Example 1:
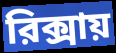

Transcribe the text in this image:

রিক্সায়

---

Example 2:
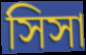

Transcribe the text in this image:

সিসা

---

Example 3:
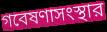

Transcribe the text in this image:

গবেষণাসংস্থার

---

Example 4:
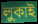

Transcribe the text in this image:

লুকাই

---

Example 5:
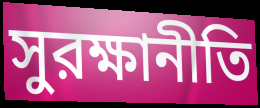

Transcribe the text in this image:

সুরক্ষানীতি